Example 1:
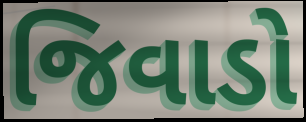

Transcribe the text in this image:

જિવાડો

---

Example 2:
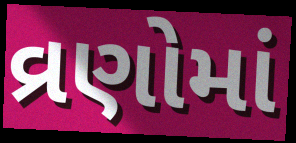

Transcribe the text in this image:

વ્રણોમાં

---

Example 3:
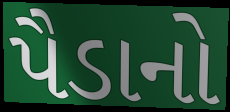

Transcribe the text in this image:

પૈડાનો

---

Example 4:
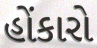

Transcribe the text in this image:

હોંકારો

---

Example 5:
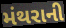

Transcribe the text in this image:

મંથરાની